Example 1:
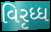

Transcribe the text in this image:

વિરૃધ્ધ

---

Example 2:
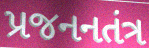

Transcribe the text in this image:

પ્રજનનતંત્ર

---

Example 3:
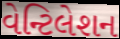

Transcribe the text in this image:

વેન્ટિલેશન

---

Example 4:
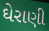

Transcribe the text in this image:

ઘેરાણી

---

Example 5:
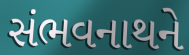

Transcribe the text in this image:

સંભવનાથને